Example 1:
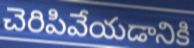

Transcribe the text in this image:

చెరిపివేయడానికి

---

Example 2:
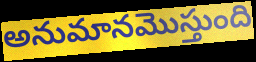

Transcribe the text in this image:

అనుమానమొస్తుంది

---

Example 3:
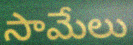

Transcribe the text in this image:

సామేలు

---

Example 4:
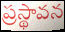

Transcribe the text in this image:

ప్రస్థావన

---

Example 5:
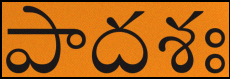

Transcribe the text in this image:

పాదశః